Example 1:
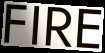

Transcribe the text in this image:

FIRE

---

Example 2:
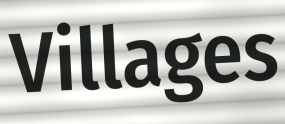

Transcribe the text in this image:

Villages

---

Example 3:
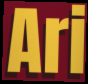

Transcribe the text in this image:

Ari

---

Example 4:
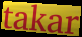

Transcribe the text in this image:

takar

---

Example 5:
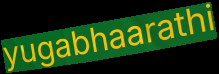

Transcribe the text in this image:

yugabhaarathi